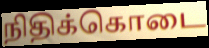
நிதிக்கொடை